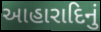
આહારાદિનું